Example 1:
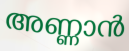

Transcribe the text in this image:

അണ്ണാൻ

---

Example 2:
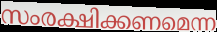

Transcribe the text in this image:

സംരക്ഷിക്കണമെന്ന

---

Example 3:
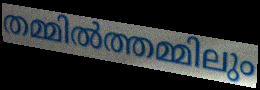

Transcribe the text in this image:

തമ്മിൽത്തമ്മിലും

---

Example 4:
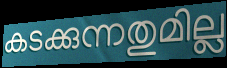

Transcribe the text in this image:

കടക്കുന്നതുമില്ല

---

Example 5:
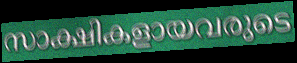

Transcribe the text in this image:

സാക്ഷികളായവരുടെ